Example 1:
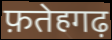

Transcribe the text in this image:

फ़तेहगढ़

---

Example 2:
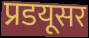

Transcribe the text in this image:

प्रडयूसर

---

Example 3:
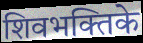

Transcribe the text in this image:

शिवभक्तिके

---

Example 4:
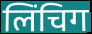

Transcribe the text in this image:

लिंचिग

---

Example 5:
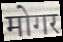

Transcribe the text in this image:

मोगर